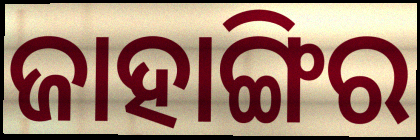
ଜାହାଙ୍ଗିର